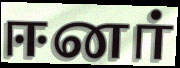
ஈனர்